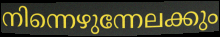
നിന്നെഴുന്നേലക്കും